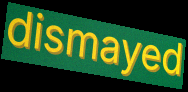
dismayed